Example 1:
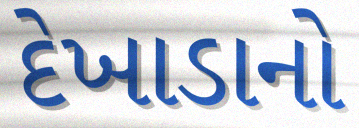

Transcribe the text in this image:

દેખાડાનો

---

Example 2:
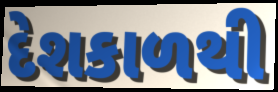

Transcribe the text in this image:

દેશકાળથી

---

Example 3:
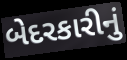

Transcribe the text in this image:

બેદરકારીનું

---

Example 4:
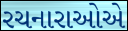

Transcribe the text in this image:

રચનારાઓએ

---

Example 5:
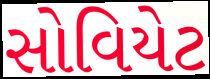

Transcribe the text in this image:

સોવિયેટ